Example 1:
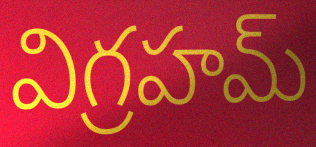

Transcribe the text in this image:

విగ్రహమ్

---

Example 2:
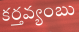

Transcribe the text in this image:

కర్తవ్యంబు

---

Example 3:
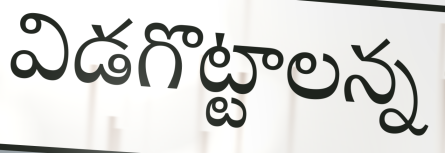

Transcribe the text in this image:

విడగొట్టాలన్న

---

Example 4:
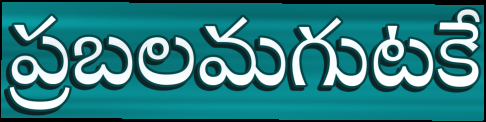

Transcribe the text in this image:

ప్రబలమగుటకే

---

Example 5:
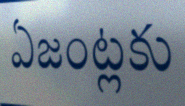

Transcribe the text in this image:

ఏజంట్లకు